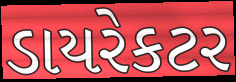
ડાયરેકટર